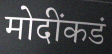
मोदींकडं